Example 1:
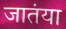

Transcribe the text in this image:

जातंया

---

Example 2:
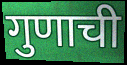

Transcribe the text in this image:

गुणाची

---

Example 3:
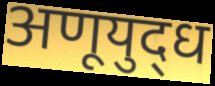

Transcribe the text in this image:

अणूयुद्ध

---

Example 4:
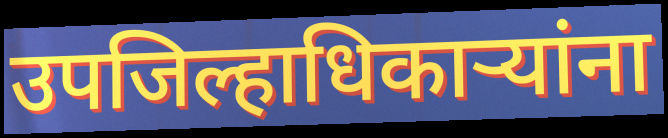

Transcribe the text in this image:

उपजिल्हाधिकाऱ्यांना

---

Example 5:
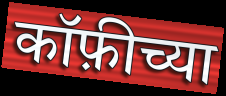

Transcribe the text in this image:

कॉफ़ीच्या